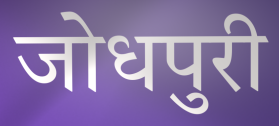
जोधपुरी